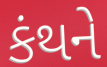
કંથને